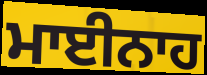
ਮਾਈਨਾਹ